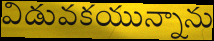
విడువకయున్నాను